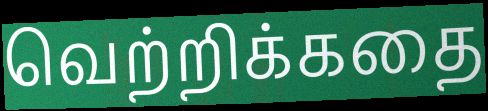
வெற்றிக்கதை